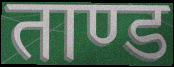
ताण्ड